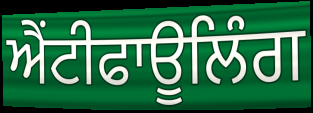
ਐਂਟੀਫਾਊਲਿੰਗ